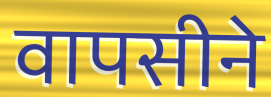
वापसीने